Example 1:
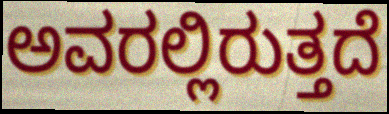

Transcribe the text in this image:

ಅವರಲ್ಲಿರುತ್ತದೆ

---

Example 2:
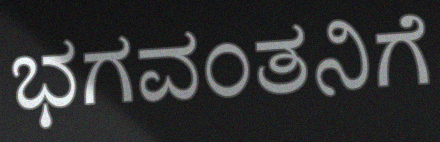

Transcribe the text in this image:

ಭಗವಂತನಿಗೆ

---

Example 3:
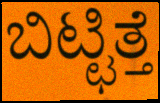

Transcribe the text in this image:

ಬಿಟ್ಟಿತ್ತೆ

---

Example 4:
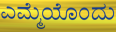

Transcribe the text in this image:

ಎಮ್ಮೆಯೊಂದು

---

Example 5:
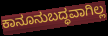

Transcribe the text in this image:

ಕಾನೂನುಬದ್ಧವಾಗಿಲ್ಲ